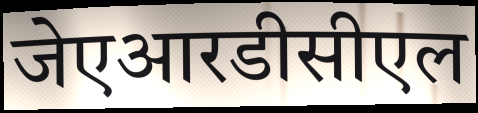
जेएआरडीसीएल